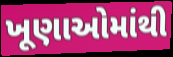
ખૂણાઓમાંથી